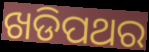
ଖଡିପଥର